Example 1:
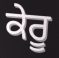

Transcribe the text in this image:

ਕੇਰੂ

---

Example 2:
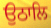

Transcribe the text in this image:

ਉਠਾਲਿ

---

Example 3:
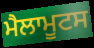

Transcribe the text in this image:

ਮੈਲਾਮੂਟਸ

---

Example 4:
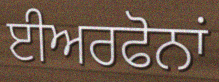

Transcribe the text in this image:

ਈਅਰਫੋਨਾਂ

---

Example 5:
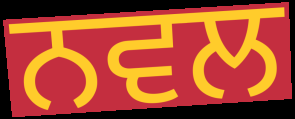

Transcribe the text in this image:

ਨਵਲ